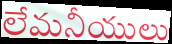
లేమనీయులు